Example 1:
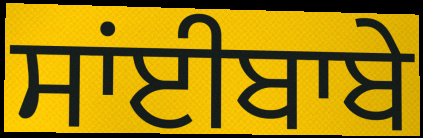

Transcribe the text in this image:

ਸਾਂਈਬਾਬੇ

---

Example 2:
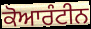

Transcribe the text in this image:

ਕੋਆਰੰਟੀਨ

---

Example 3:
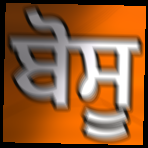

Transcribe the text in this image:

ਬੋਸੂ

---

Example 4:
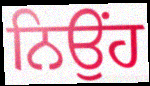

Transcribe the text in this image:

ਨਿਉਂਹ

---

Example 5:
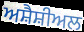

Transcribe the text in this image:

ਅਸ਼ੈਸ਼ੀਅਲ